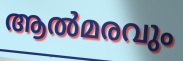
ആൽമരവും